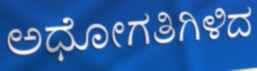
ಅಧೋಗತಿಗಿಳಿದ